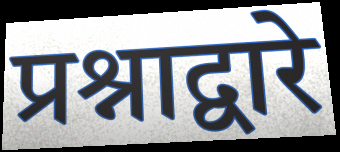
प्रश्नाद्वारे